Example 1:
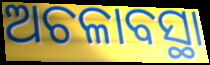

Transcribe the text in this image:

ଅଚଳାବସ୍ଥା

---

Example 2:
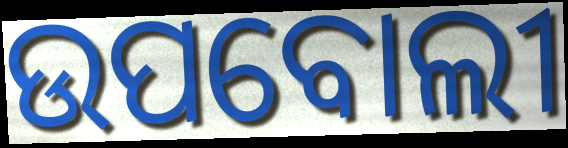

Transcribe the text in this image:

ଉପବୋଲୀ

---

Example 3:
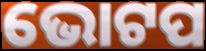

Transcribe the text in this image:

ଭୋଟପ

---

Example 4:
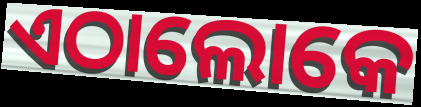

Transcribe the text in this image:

ଏଠାଲୋକେ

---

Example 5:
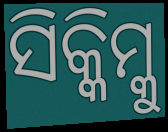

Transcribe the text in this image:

ସିକ୍କିମ୍କୁ